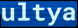
ultya